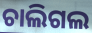
ଚାଲିଗଲ